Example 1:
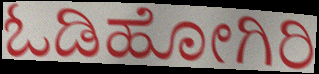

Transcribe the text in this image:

ಓಡಿಹೋಗಿರಿ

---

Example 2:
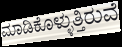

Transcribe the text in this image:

ಮಾಡಿಕೊಳ್ಳುತ್ತಿರುವೆ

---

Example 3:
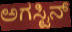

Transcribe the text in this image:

ಅಗಸ್ಟಿನ್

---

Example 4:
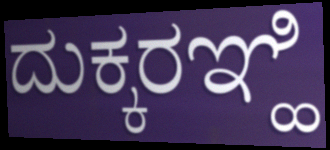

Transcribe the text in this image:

ದುಕ್ಕರಞ್ಹಿ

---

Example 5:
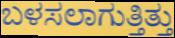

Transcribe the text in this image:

ಬಳಸಲಾಗುತ್ತಿತ್ತು